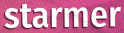
starmer